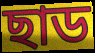
ছাড